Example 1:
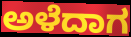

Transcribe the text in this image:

ಅಳೆದಾಗ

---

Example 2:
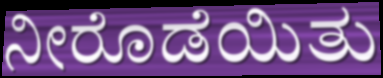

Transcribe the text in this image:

ನೀರೊಡೆಯಿತು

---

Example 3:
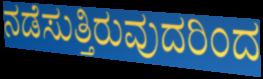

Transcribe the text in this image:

ನಡೆಸುತ್ತಿರುವುದರಿಂದ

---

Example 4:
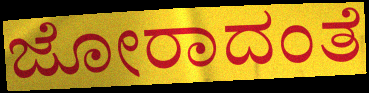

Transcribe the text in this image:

ಜೋರಾದಂತೆ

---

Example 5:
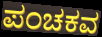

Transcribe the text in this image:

ಪಂಚಕವ